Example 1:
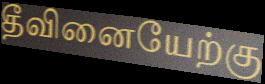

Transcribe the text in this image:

தீவினையேற்கு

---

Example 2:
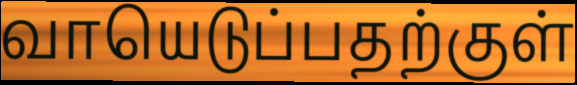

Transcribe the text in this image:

வாயெடுப்பதற்குள்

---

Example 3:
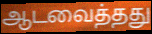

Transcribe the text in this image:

ஆடவைத்தது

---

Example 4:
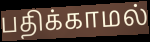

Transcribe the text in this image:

பதிக்காமல்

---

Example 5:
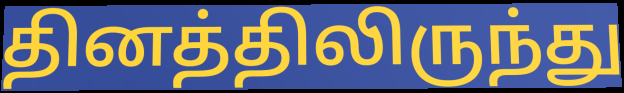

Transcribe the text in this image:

தினத்திலிருந்து